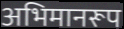
अभिमानरूप